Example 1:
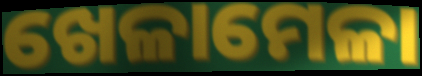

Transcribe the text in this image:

ଖେଳାମେଳା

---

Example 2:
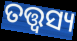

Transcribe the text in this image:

ତତ୍ତ୍ୱସ୍ୟ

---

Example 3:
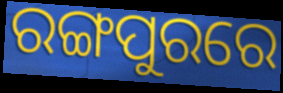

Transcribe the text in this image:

ରଙ୍ଗପୁରରେ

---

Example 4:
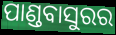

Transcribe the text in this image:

ପାଣ୍ଡବାସୁରର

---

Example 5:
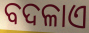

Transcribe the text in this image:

ବଦଳାଏ